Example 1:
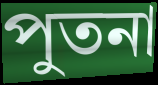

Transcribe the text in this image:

পুতনা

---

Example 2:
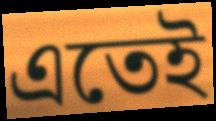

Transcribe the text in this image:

এতেই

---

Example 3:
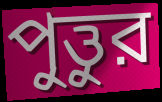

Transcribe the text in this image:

পুত্তুর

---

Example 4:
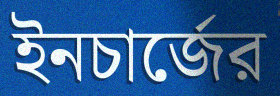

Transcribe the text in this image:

ইনচার্জের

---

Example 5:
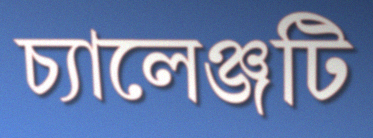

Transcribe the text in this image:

চ্যালেঞ্জটি